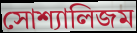
সোশ্যালিজম